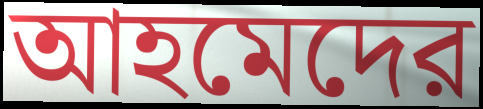
আহমেদের